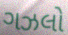
ગઝલો